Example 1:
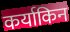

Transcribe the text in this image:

कर्याकिन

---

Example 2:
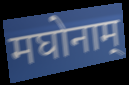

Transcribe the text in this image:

मघोनाम्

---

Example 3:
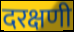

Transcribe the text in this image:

दरक्षणी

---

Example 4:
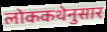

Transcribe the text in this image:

लोककथेनुसार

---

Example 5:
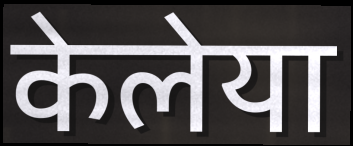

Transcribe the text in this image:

केलेया